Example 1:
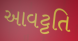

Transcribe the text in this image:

આવટ્ટતિ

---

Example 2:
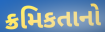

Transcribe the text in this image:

ક્રમિકતાનો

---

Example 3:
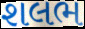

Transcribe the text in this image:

શલભ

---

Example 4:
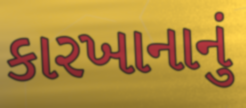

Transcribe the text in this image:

કારખાનાનું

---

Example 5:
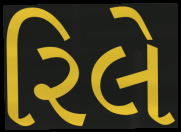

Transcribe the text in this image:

રિલે